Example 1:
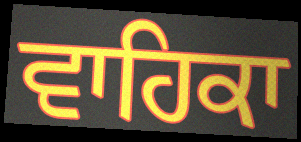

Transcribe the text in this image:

ਵਾਹਿਕਾ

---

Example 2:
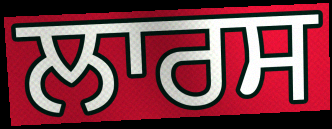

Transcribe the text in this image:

ਲਾਰਸ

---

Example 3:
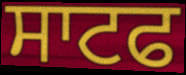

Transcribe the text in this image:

ਸਾਟਫ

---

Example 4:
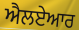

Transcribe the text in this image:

ਐਲਏਆਰ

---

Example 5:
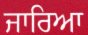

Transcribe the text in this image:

ਜਾਰਿਆ